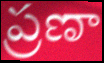
ప్రణా